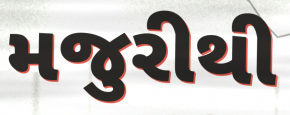
મજુરીથી